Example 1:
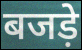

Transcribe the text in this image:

बजड़े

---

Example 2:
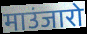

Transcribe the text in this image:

माउंजारो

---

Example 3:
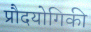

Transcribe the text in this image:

प्रौदयोगिकी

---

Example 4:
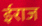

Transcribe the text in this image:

ईराज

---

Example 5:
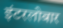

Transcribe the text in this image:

इंटरलोबार